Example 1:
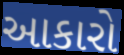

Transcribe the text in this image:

આકારો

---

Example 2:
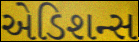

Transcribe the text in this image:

એડિશન્સ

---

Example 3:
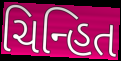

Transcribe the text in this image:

ચિન્હિત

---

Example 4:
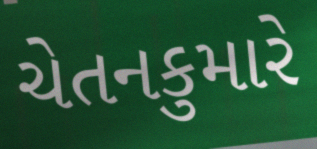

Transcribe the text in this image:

ચેતનકુમારે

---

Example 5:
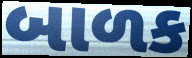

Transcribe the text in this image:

બાળક